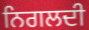
ਨਿਗਲਦੀ